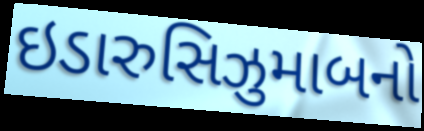
ઇડારુસિઝુમાબનો